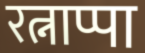
रत्नाप्पा